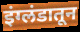
इंग्लंडातून